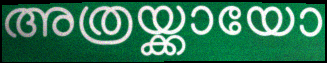
അത്രയ്ക്കായോ